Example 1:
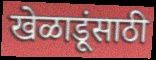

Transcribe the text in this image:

खेळाडूंसाठी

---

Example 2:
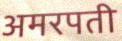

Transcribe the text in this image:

अमरपती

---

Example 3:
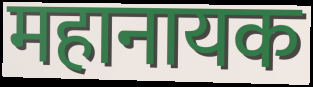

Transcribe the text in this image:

महानायक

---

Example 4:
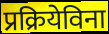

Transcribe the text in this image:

प्रक्रियेविना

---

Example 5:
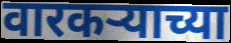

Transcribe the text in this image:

वारकऱ्याच्या